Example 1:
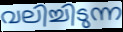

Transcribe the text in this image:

വലിച്ചിടുന്ന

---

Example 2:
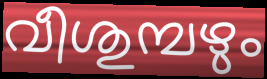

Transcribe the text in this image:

വീശുമ്പഴും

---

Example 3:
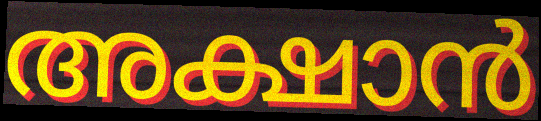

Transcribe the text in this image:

അക്ഷാൻ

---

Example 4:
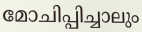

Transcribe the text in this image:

മോചിപ്പിച്ചാലും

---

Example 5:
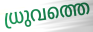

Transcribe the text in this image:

ധ്രുവത്തെ